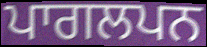
ਪਾਗਲਪਨ